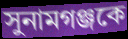
সুনামগঞ্জকে